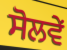
ਸੋਲਵੇਂ